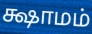
க்ஷாமம்